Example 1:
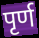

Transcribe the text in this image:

पृर्ण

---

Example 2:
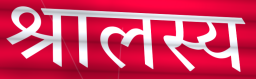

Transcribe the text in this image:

श्रालस्य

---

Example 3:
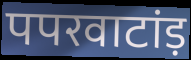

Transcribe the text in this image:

पपरवाटांड़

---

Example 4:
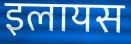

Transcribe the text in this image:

इलायस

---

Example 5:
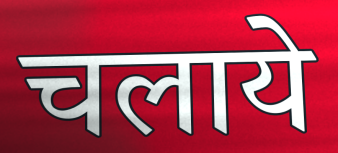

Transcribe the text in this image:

चलाये